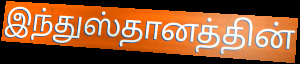
இந்துஸ்தானத்தின்